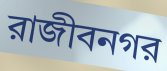
রাজীবনগর